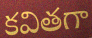
కవితగా